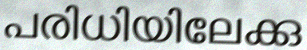
പരിധിയിലേക്കു